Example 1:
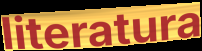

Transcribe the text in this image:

literatura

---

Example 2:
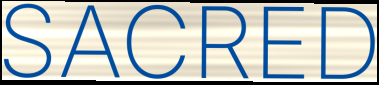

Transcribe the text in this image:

SACRED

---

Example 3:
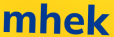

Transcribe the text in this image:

mhek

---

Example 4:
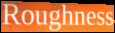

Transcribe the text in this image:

Roughness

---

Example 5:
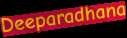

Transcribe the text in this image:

Deeparadhana